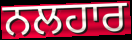
ਨਲਹਾਰ